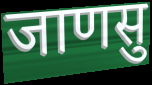
जाणसु